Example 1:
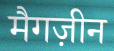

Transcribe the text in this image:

मैगज़ीन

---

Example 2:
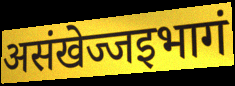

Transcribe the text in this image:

असंखेज्जइभागं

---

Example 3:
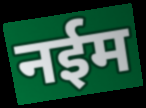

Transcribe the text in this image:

नईम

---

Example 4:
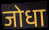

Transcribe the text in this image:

जोधा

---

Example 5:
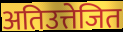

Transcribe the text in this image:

अतिउत्तेजित